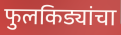
फुलकिड्यांचा